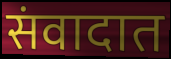
संवादात